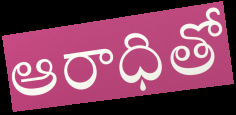
ఆరాధితో